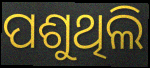
ପଶୁଥିଲି